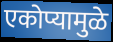
एकोप्यामुळे